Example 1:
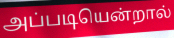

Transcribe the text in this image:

அப்படியென்றால்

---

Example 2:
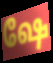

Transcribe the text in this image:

ஷே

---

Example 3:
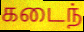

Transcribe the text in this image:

கடைந்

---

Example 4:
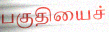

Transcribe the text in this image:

பகுதியைச்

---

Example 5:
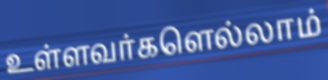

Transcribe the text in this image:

உள்ளவர்களெல்லாம்